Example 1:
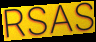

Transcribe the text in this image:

RSAS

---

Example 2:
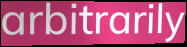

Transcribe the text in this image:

arbitrarily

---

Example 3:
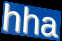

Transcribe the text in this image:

hha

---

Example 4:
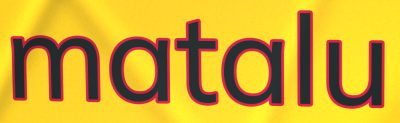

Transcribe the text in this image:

matalu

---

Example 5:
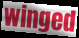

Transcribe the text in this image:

winged